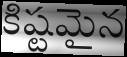
కిష్టమైన